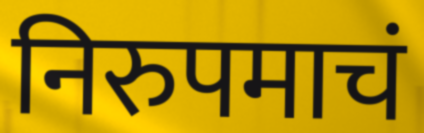
निरुपमाचं